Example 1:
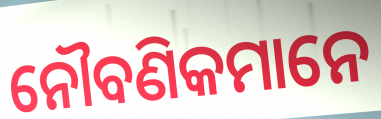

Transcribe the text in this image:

ନୌବଣିକମାନେ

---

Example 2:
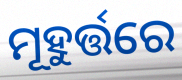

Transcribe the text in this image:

ମୂହୁର୍ତ୍ତରେ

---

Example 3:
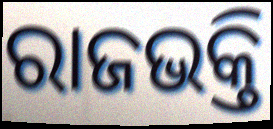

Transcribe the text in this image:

ରାଜଭକ୍ତି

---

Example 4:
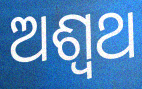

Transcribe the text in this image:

ଅଶ୍ବଥ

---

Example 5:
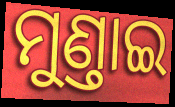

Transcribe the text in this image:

ମୁଣ୍ତାଇ